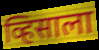
व्हिसाला